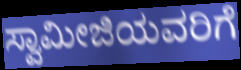
ಸ್ವಾಮೀಜಿಯವರಿಗೆ